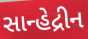
સાન્હેદ્રીન